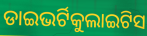
ଡାଇଭର୍ଟିକୁଲାଇଟିସ